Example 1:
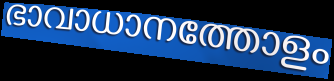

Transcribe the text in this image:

ഭാവാധാനത്തോളം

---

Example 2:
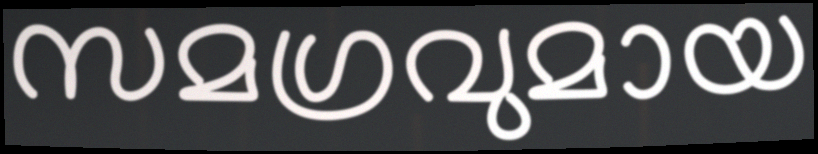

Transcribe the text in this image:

സമഗ്രവുമായ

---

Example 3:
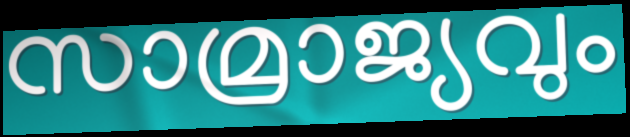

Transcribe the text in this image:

സാമ്രാജ്യവും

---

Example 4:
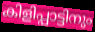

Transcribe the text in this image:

കിളിപ്പാട്ടിനും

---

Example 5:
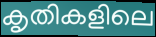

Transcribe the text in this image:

കൃതികളിലെ